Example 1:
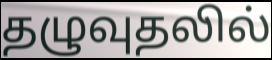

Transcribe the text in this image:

தழுவுதலில்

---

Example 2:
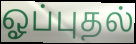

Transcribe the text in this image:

ஓப்புதல்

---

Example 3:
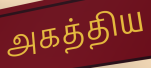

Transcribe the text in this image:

அகத்திய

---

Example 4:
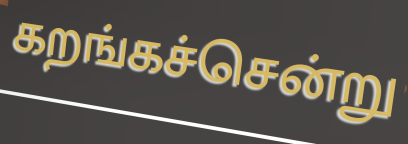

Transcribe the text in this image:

கறங்கச்சென்று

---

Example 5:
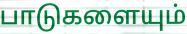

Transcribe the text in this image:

பாடுகளையும்